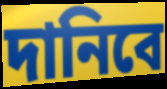
দানিবে